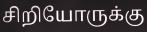
சிறியோருக்கு